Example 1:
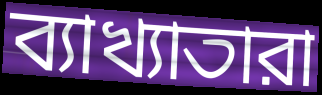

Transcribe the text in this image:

ব্যাখ্যাতারা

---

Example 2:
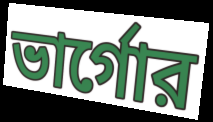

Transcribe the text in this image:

ভার্গোর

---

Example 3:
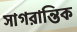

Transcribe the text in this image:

সাগরান্তিক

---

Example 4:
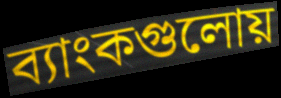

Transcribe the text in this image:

ব্যাংকগুলোয়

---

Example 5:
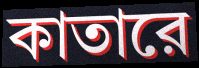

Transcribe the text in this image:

কাতারে